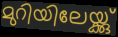
മുറിയിലേയ്ക്കു്